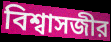
বিশ্বাসজীর